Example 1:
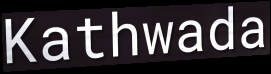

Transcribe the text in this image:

Kathwada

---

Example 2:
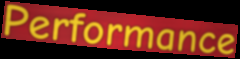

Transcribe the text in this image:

Performance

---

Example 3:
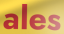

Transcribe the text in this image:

ales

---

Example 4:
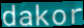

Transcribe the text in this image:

dakor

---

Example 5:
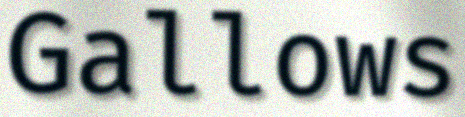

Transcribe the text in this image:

Gallows